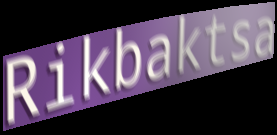
Rikbaktsa